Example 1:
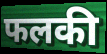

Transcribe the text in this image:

फलकी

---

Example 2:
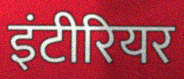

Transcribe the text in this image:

इंटीरियर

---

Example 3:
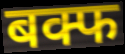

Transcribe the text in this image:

बक्फ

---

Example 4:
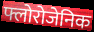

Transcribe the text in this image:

फ्लोरोजेनिक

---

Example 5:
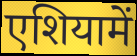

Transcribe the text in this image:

एशियामें